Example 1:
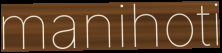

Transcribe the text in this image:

manihoti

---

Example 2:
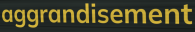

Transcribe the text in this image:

aggrandisement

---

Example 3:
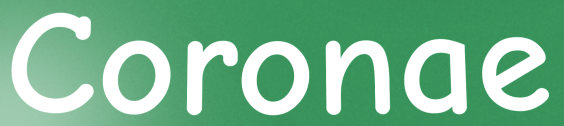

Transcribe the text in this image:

Coronae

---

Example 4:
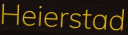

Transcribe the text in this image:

Heierstad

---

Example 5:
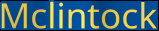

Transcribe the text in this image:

Mclintock